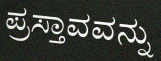
ಪ್ರಸ್ತಾವವನ್ನು